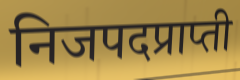
निजपदप्राप्ती